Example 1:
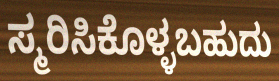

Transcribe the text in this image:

ಸ್ಮರಿಸಿಕೊಳ್ಳಬಹುದು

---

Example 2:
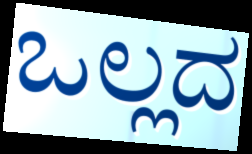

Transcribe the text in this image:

ಒಲ್ಲದ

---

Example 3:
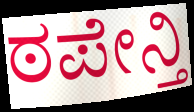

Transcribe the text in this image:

ಠಪೇನ್ತಿ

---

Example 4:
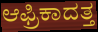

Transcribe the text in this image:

ಆಫ್ರಿಕಾದತ್ತ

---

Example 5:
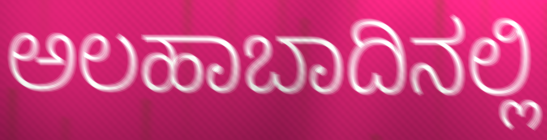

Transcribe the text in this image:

ಅಲಹಾಬಾದಿನಲ್ಲಿ